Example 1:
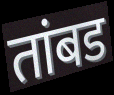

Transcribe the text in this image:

तांबड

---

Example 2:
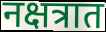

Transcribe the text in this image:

नक्षत्रात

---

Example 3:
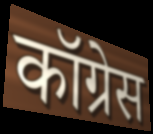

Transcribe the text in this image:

कॉग्रेस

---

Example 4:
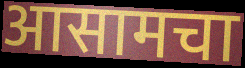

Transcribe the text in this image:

आसामचा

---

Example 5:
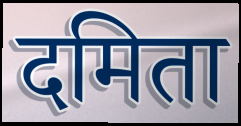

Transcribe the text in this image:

दमिता